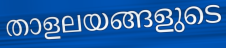
താളലയങ്ങളുടെ